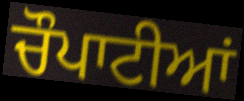
ਚੌਪਾਟੀਆਂ